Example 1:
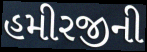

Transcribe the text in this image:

હમીરજીની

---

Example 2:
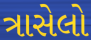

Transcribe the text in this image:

ત્રાસેલો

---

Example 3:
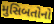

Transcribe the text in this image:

મુસિબતોનો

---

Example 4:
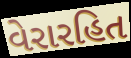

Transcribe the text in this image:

વેરારહિત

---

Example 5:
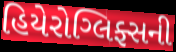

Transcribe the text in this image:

હિયેરોગ્લિફ્સની